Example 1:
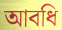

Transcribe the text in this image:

আবধি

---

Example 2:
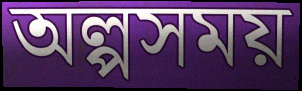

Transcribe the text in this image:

অল্পসময়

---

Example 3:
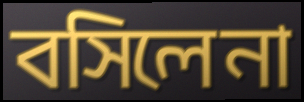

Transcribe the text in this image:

বসিলেনা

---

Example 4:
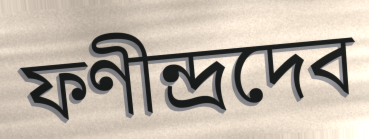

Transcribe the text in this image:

ফণীন্দ্রদেব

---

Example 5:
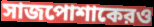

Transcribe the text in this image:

সাজপোশাকেরও